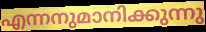
എന്നനുമാനിക്കുന്നു